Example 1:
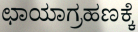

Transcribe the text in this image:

ಛಾಯಾಗ್ರಹಣಕ್ಕೆ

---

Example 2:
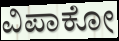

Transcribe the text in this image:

ವಿಪಾಕೋ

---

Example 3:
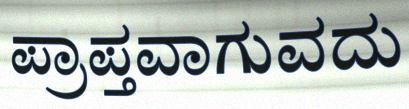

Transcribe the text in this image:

ಪ್ರಾಪ್ತವಾಗುವದು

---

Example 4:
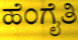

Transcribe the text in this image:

ಹೆಂಗೈತಿ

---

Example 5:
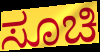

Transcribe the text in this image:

ಸೂಚಿ